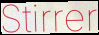
Stirrer